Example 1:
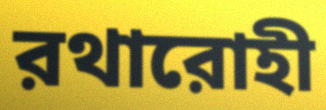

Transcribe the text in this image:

রথারোহী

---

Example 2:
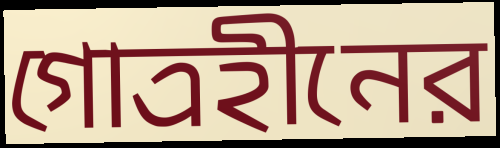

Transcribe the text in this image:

গোত্রহীনের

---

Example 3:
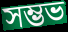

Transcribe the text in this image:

সম্ভভ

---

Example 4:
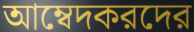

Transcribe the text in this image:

আম্বেদকরদের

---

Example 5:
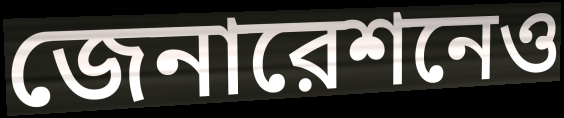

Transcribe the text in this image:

জেনারেশনেও